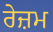
ਰੇਜ਼ਮ